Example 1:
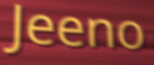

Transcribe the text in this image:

Jeeno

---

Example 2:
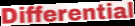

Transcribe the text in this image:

Differential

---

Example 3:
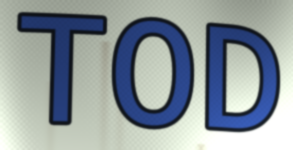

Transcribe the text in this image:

TOD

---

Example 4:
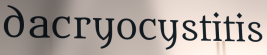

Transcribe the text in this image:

dacryocystitis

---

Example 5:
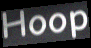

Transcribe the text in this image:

Hoop